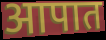
आपात